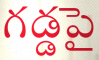
గడ్డపై